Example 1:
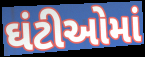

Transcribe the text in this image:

ઘંટીઓમાં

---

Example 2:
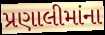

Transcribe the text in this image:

પ્રણાલીમાંના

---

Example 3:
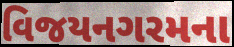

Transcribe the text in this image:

વિજયનગરમના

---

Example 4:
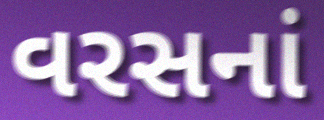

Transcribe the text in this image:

વરસનાં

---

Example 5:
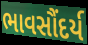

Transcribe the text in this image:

ભાવસૌંદર્ય